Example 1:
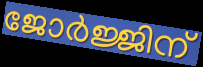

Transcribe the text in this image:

ജോർജ്ജിന്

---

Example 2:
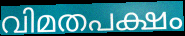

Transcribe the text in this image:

വിമതപക്ഷം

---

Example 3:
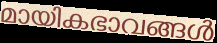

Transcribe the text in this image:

മായികഭാവങ്ങൾ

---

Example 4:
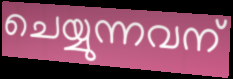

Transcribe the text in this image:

ചെയ്യുന്നവന്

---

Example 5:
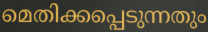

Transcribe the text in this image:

മെതിക്കപ്പെടുന്നതും